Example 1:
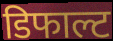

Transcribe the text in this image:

डिफाल्ट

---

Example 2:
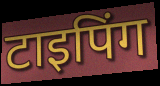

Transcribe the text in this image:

टाइपिंग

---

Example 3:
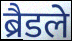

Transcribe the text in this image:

ब्रैडले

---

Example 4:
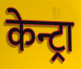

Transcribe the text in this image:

केन्ट्रा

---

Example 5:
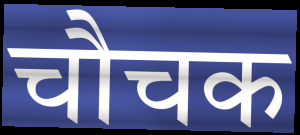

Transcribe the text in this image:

चौचक